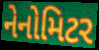
નેનોમિટર